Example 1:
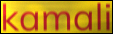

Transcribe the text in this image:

kamali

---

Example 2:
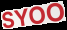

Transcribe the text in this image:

SYOO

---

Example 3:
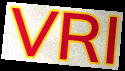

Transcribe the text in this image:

VRI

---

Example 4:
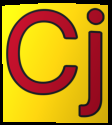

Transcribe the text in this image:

Cj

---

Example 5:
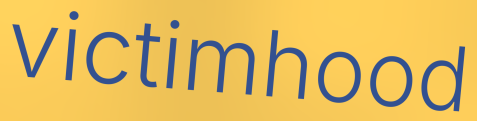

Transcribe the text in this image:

victimhood